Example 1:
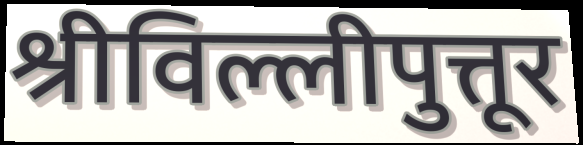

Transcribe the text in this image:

श्रीविल्लीपुत्तूर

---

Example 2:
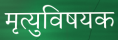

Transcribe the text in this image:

मृत्युविषयक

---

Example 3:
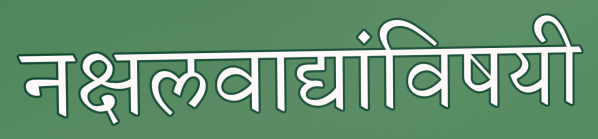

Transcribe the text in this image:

नक्षलवाद्यांविषयी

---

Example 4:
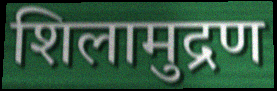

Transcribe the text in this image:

शिलामुद्रण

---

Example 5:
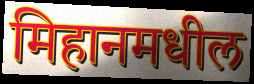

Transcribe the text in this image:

मिहानमधील